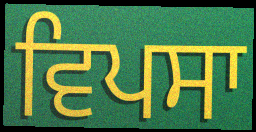
ਵਿਪਸਾ